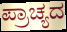
ಪ್ರಾಚ್ಯದ